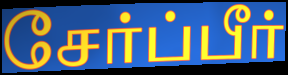
சேர்ப்பீர்